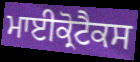
ਮਾਈਕ੍ਰੋਟੈਕਸ